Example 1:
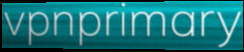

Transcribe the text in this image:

vpnprimary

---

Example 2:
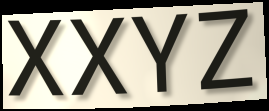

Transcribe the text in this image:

XXYZ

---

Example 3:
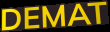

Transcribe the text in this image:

DEMAT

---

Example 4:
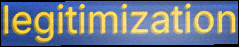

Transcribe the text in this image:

legitimization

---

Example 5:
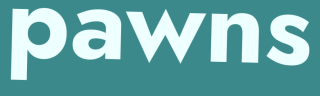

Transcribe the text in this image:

pawns